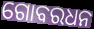
ଗୋବରଧନ